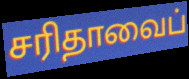
சரிதாவைப்